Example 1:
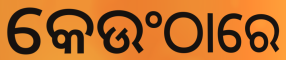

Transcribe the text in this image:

କେଉଂଠାରେ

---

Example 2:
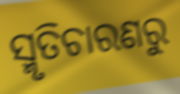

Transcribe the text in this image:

ସ୍ମୃତିଚାରଣରୁ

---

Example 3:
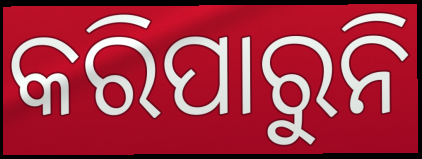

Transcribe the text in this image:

କରିପାରୁନି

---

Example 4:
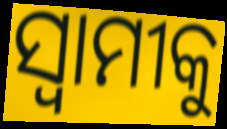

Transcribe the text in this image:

ସ୍ବାମୀକୁ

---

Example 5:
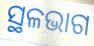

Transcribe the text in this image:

ସ୍ଥଳଭାଗ